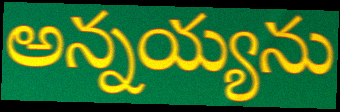
అన్నయ్యను